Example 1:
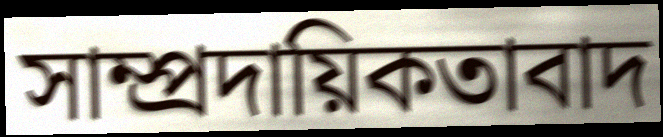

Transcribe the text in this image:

সাম্প্ৰদায়িকতাবাদ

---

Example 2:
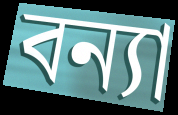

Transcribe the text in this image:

বন্যা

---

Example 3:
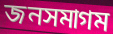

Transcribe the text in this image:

জনসমাগম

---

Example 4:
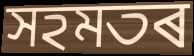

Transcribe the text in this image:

সহমতৰ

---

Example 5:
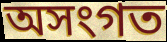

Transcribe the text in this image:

অসংগত